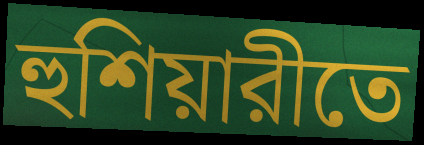
হুশিয়ারীতে